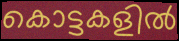
കൊട്ടകളിൽ